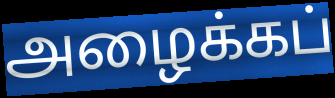
அழைக்கப்